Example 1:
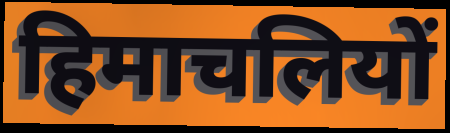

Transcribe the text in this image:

हिमाचलियों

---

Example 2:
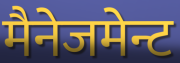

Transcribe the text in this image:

मैनेजमेन्ट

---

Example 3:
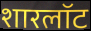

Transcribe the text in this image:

शारलॉट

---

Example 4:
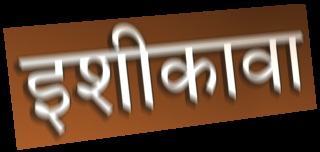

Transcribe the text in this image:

इशीकावा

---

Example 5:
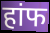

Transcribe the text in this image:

हांफ